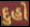
દુહો